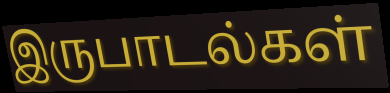
இருபாடல்கள்